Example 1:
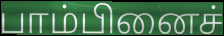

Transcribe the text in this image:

பாம்பினைச்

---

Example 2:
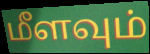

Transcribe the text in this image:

மீளவும்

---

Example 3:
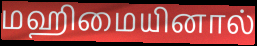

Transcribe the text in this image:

மஹிமையினால்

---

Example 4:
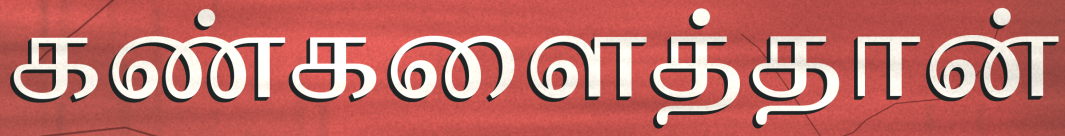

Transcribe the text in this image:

கண்களைத்தான்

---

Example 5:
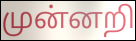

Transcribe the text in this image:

முன்னறி